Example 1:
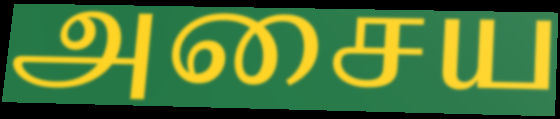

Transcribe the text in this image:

அசைய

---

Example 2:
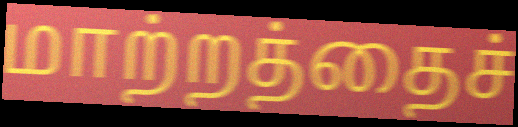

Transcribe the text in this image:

மாற்றத்தைச்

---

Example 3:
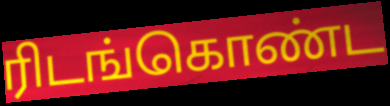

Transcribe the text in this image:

ரிடங்கொண்ட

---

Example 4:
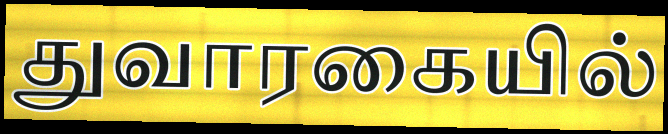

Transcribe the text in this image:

துவாரகையில்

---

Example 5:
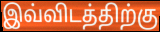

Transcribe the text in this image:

இவ்விடத்திற்கு